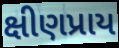
ક્ષીણપ્રાય